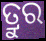
ତ୍ରୁର